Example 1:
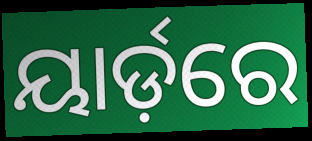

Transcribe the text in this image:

ୟାର୍ଡ଼ରେ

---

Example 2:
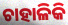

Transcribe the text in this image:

ଚାହାଳିକି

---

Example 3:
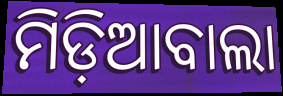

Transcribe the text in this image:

ମିଡ଼ିଆବାଲା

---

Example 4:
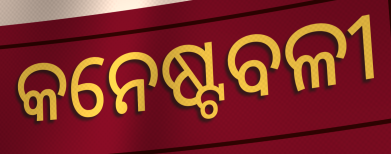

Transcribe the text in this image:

କନେଷ୍ଟବଳୀ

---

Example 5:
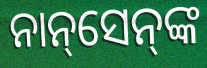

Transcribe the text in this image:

ନାନ୍‌ସେନ୍‌ଙ୍କ